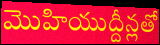
మొహియుద్దీన్లతో